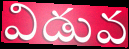
విడువ